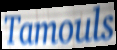
Tamouls